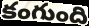
కంగుంది